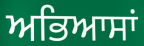
ਅਭਿਆਸਾਂ